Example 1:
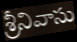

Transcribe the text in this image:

శ్రీనివాసు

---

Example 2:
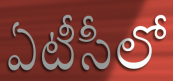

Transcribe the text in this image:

ఏటీసీలో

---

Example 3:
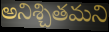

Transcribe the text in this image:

అనిశ్చితమని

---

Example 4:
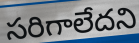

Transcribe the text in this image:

సరిగాలేదని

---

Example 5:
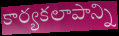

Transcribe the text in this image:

కార్యకలాపాన్ని